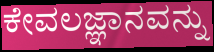
ಕೇವಲಜ್ಞಾನವನ್ನು